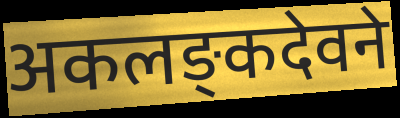
अकलङ्कदेवने